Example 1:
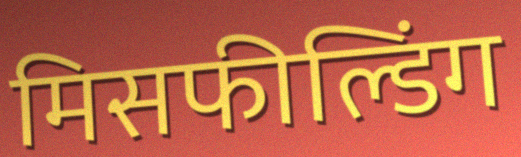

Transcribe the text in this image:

मिसफील्डिंग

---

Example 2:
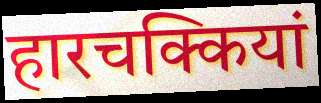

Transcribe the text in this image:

हारचक्कियां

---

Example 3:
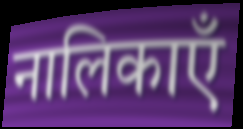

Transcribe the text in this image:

नालिकाएँ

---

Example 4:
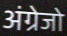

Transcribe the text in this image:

अंग्रेजो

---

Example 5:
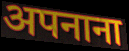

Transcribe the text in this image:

अपनाना